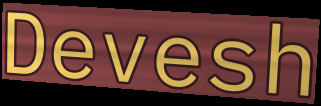
Devesh